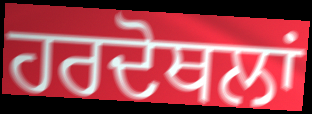
ਹਰਦੋਥਲਾਂ